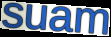
suam